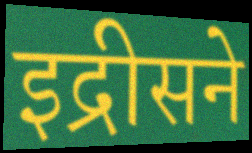
इद्रीसने